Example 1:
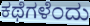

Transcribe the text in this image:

ಕಥೆಗಳೆಂದು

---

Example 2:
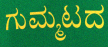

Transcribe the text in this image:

ಗುಮ್ಮಟದ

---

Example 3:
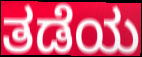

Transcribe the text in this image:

ತಡೆಯ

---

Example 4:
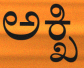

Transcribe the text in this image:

ಅಕ್ಖಿ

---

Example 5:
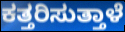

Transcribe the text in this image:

ಕತ್ತರಿಸುತ್ತಾಳೆ